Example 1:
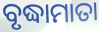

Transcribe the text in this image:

ବୃଦ୍ଧାମାତା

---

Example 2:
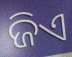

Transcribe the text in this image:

ଜିଏ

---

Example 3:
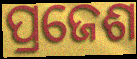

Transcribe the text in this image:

ପ୍ରଜେଶ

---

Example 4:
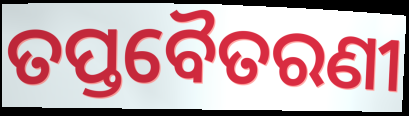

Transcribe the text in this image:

ତପ୍ତବୈତରଣୀ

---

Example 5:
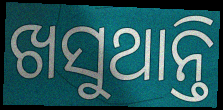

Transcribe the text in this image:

ଖସୁଥାନ୍ତି